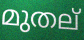
മുതല്